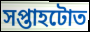
সপ্তাহটোত